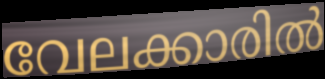
വേലക്കാരിൽ